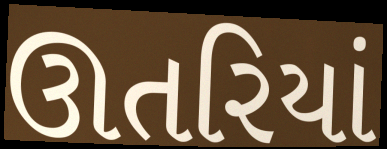
ઊતરિયાં